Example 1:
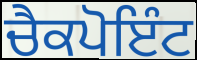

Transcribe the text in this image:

ਚੈਕਪੋਇੰਟ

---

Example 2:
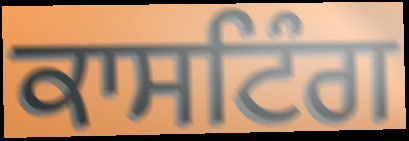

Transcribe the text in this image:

ਕਾਸਟਿੰਗ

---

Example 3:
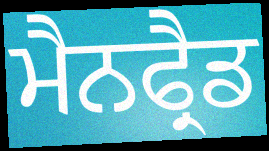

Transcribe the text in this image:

ਮੈਨਫ੍ਰੈਡ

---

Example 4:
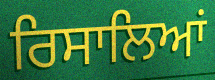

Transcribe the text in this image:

ਰਿਸਾਲਿਆਂ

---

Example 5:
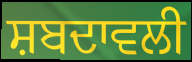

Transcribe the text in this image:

ਸ਼ਬਦਾਵਲੀ